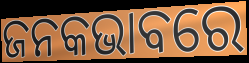
ଜନକଭାବରେ